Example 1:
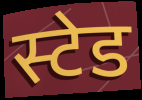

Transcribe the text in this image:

स्टेड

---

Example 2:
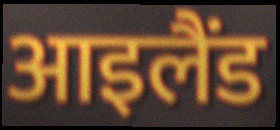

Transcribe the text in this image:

आइलैंड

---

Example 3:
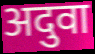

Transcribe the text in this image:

अदुवा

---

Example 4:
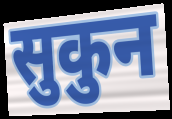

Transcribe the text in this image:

सुकुन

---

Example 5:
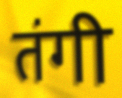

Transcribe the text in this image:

तंगी